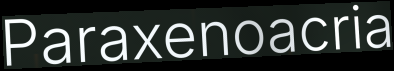
Paraxenoacria